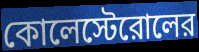
কোলেস্টেরোলের